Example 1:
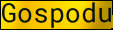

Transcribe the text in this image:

Gospodu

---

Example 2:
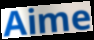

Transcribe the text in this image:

Aime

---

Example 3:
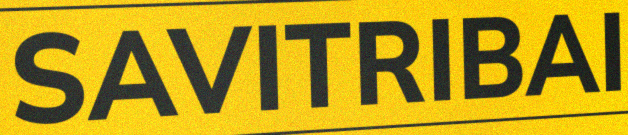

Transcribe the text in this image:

SAVITRIBAI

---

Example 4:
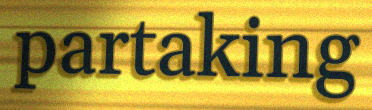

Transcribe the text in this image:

partaking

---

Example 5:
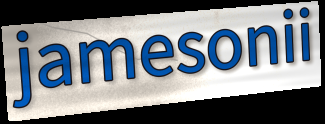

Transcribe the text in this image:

jamesonii